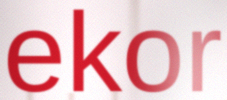
ekor